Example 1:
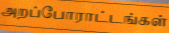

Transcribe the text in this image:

அறப்போராட்டங்கள்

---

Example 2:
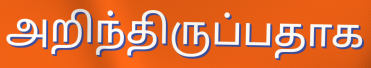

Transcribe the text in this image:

அறிந்திருப்பதாக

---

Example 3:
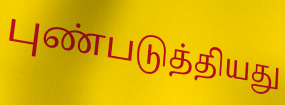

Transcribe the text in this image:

புண்படுத்தியது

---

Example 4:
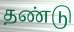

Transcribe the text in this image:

தண்டு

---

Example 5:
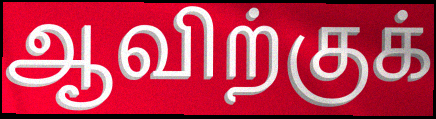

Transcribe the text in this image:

ஆவிற்குக்